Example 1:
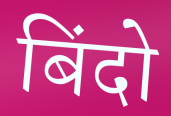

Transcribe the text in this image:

बिंदो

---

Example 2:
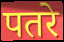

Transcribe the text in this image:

पतरे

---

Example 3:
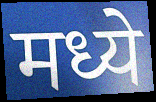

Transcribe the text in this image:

मध्ये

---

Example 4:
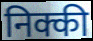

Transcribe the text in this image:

निक्की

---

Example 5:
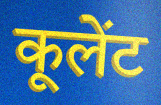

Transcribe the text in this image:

कूलेंट